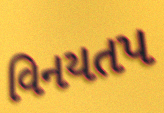
વિનયતપ